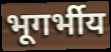
भूगर्भीय